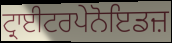
ਟ੍ਰਾਈਟਰਪੇਨੋਇਡਜ਼